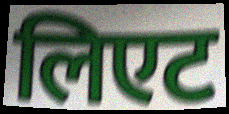
लिएट